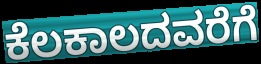
ಕೆಲಕಾಲದವರೆಗೆ